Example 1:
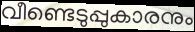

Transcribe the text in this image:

വീണ്ടെടുപ്പുകാരനും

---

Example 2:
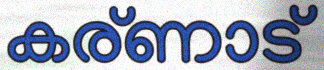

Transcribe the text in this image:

കര്ണാട്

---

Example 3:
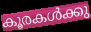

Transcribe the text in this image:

കൂരകൾക്കു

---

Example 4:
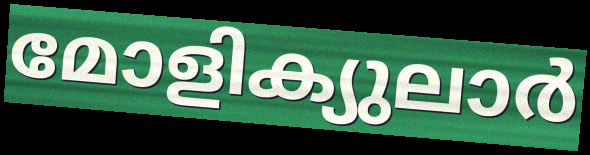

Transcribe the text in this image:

മോളിക്യുലാർ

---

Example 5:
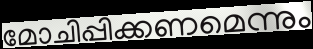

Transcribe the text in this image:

മോചിപ്പിക്കണമെന്നും